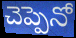
చెప్పెనో